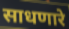
साधणारे